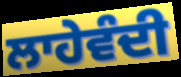
ਲਾਹੇਵੰਦੀ